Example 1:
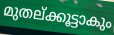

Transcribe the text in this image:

മുതല്ക്കൂട്ടാകും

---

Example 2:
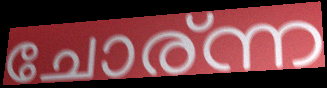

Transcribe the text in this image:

ചോര്ന്ന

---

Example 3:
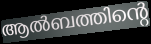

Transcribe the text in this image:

ആൽബത്തിന്റെ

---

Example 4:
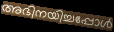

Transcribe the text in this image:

അഭിനയിച്ചപ്പോൾ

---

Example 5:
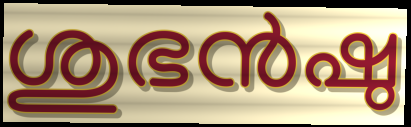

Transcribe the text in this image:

ശുഭൻഷു